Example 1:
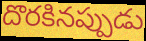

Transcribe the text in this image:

దొరకినప్పుడు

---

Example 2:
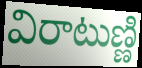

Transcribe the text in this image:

విరాటుణ్ణి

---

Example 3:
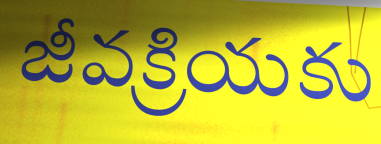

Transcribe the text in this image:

జీవక్రియకు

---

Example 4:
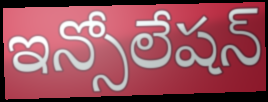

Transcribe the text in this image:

ఇన్సోలేషన్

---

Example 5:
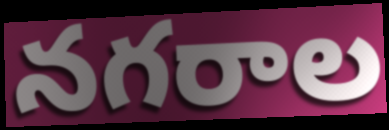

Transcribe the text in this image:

నగరాల